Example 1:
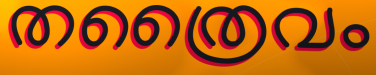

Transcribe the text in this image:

തത്രൈവം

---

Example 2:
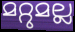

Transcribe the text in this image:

മറ്റുമല്ല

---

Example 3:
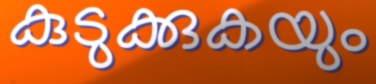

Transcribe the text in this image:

കുടുക്കുകയും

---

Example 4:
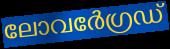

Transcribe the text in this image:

ലോവർേഗ്രഡ്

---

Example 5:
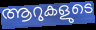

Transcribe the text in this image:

ആറുകളുടെ